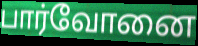
பார்வோனை